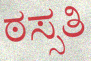
ಠಸ್ಸತಿ